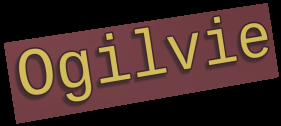
Ogilvie